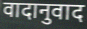
वादानुवाद